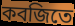
কবজিতে